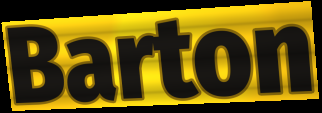
Barton